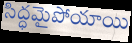
సిద్ధమైపోయాయి